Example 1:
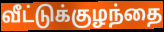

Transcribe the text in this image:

வீட்டுக்குழந்தை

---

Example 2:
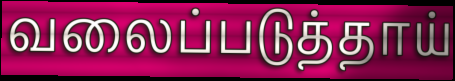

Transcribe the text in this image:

வலைப்படுத்தாய்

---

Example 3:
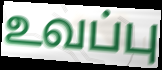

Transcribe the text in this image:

உவப்பு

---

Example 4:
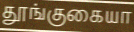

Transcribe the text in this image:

தூங்குகையா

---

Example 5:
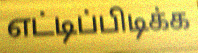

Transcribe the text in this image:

எட்டிப்பிடிக்க